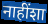
नाहींशा